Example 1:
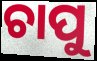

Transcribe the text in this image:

ଚାପୁ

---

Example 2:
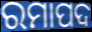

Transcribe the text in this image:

ରମାପଦ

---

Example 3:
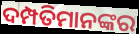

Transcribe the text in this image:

ଦମ୍ପତିମାନଙ୍କର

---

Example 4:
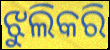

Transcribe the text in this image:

ଝୁଲିକରି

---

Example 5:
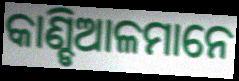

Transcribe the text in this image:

କାଣ୍ଡିଆଳମାନେ